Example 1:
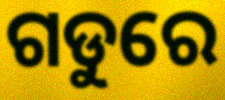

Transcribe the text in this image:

ଗଡୁରେ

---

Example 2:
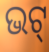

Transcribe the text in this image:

ଭଟ୍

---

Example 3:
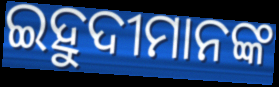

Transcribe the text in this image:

ଇହୁଦୀମାନଙ୍କ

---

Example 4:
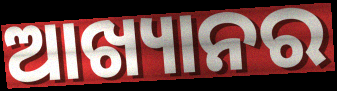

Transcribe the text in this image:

ଆଖ୍ୟାନର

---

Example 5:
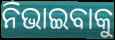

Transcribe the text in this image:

ନିଭାଇବାକୁ